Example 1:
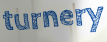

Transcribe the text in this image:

turnery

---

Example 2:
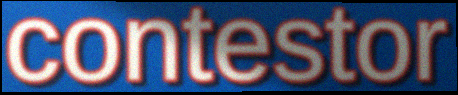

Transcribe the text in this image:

contestor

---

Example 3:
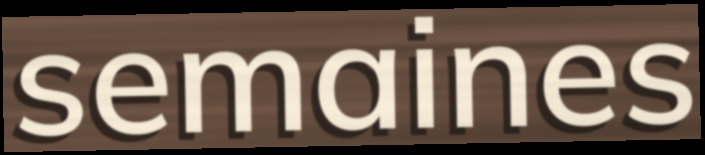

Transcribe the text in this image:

semaines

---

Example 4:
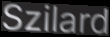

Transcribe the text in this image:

Szilard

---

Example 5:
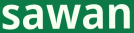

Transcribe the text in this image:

sawan